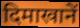
दिमाखानें